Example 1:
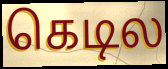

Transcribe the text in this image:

கெடில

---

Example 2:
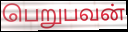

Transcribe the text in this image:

பெறுபவன்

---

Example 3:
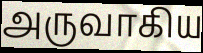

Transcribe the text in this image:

அருவாகிய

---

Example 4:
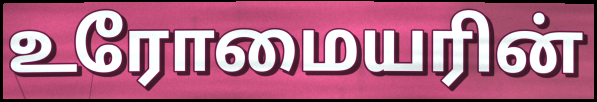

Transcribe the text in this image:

உரோமையரின்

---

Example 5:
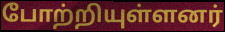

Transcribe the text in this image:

போற்றியுள்ளனர்